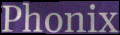
Phonix